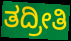
ತದ್ರೀತಿ